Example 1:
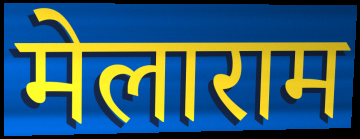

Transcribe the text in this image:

मेलाराम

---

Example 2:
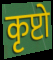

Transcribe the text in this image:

कृप्टो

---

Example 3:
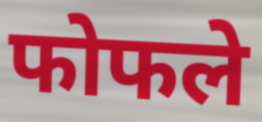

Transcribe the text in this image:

फोफले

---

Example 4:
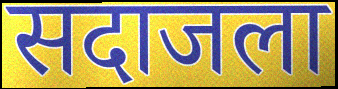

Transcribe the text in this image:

सदाजला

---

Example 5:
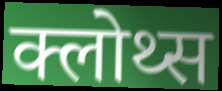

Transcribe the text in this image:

क्लोथ्स